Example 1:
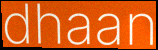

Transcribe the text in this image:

dhaan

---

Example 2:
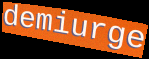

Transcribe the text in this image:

demiurge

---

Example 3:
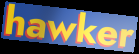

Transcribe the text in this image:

hawker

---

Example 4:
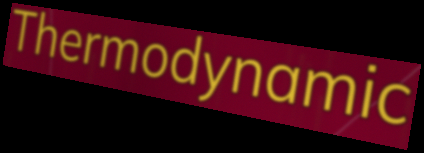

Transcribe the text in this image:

Thermodynamic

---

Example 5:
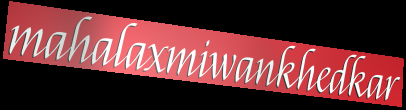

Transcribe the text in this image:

mahalaxmiwankhedkar